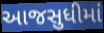
આજસુધીમાં